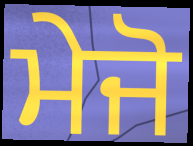
ਮੇਜੋ